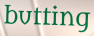
butting